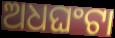
ଅଧଘଂଟା